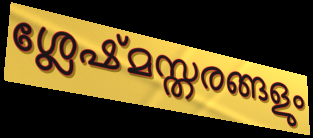
ശ്ലേഷ്മസ്തരങ്ങളും